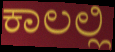
ಕಾಲಲ್ಲಿ